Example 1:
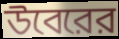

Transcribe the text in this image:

উবেরের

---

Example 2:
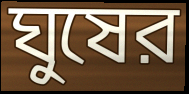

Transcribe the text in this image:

ঘুষের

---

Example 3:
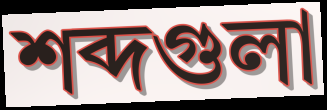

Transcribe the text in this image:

শব্দগুলা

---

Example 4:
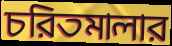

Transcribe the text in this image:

চরিতমালার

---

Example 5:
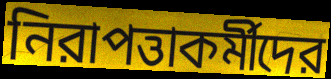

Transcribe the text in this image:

নিরাপত্তাকর্মীদের